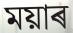
ময়াৰ